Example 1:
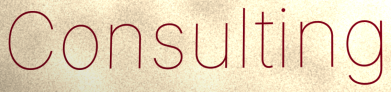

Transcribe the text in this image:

Consulting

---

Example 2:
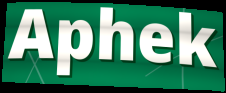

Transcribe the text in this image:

Aphek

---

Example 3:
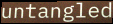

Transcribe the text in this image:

untangled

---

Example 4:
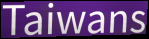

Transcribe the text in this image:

Taiwans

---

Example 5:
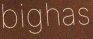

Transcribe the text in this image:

bighas